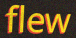
flew